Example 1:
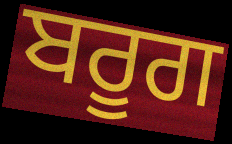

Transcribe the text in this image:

ਬਰੂਗ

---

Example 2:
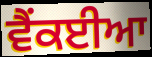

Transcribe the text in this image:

ਵੈਂਕਈਆ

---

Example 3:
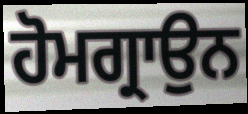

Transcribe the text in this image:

ਹੋਮਗ੍ਰਾਉਨ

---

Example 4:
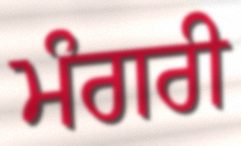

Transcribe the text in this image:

ਮੰਗਰੀ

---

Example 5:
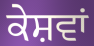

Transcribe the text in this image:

ਕੇਸ਼ਵਾਂ